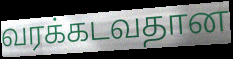
வரக்கடவதான